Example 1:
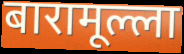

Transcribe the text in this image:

बारामूल्ला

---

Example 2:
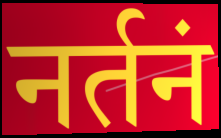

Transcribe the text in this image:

नर्तनं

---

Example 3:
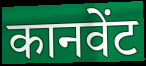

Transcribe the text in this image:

कानवेंट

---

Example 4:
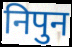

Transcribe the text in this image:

निपुन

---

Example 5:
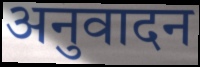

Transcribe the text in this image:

अनुवादन